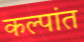
कल्पांत